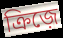
ক্রিজ়ে